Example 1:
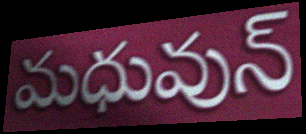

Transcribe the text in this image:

మధువున్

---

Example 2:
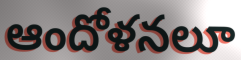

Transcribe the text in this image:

ఆందోళనలూ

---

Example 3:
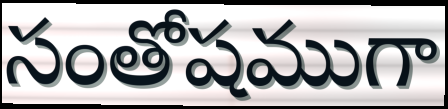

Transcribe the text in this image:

సంతోషముగా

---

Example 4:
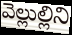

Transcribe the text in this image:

వెల్లుల్లిని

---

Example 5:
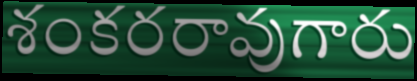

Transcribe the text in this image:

శంకరరావుగారు